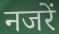
नजरें